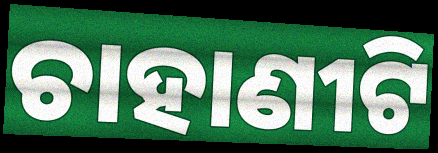
ଚାହାଣୀଟି